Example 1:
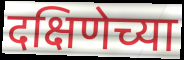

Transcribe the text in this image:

दक्षिणेच्या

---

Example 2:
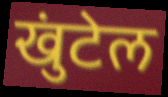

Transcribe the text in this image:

खुंटेल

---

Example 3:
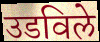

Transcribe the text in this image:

उडविले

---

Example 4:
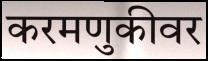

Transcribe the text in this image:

करमणुकीवर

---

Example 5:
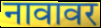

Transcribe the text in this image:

नावावर